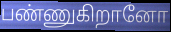
பண்ணுகிறானோ